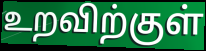
உறவிற்குள்